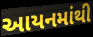
આયનમાંથી